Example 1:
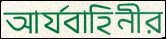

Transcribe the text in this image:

আর্যবাহিনীর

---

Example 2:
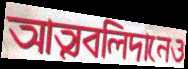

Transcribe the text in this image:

আত্মবলিদানেও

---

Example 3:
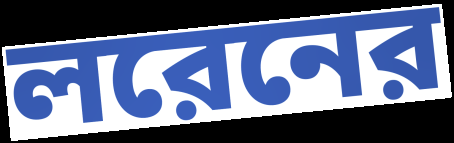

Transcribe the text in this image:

লরেনের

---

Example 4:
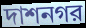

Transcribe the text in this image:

দাশনগর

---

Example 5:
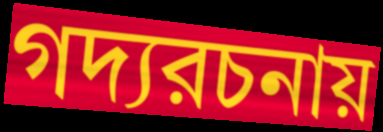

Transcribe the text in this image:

গদ্যরচনায়